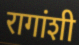
रागांशी